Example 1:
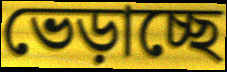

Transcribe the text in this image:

ভেড়াচ্ছে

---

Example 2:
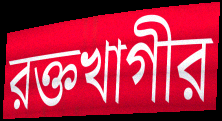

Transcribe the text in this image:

রক্তখাগীর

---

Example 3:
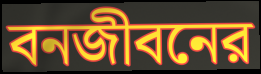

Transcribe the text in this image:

বনজীবনের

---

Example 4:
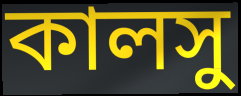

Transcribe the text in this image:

কালসু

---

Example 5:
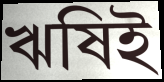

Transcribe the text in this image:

ঋষিই